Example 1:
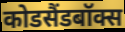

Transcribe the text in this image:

कोडसैंडबॉक्स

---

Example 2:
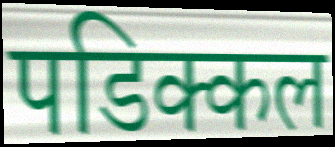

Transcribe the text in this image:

पडिक्कल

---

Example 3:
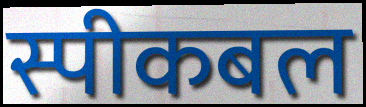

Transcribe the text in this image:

स्पीकबल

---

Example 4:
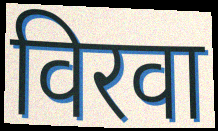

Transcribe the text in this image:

विरवा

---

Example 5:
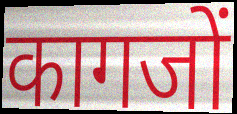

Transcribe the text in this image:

कागजों